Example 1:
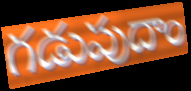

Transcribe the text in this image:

గడుపుదాం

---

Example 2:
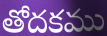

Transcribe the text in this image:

తోదకము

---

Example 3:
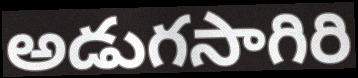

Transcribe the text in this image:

అడుగసాగిరి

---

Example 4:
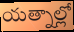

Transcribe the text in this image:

యత్నాల్లో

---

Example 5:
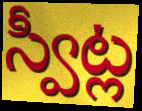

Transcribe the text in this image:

స్వీట్ల